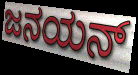
ಜನಯನ್